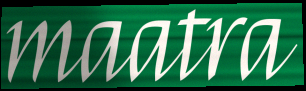
maatra